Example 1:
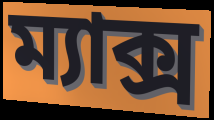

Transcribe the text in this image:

ম্যাক্স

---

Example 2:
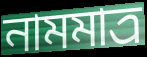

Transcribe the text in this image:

নামমাত্ৰ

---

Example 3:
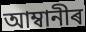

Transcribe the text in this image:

আম্বানীৰ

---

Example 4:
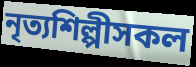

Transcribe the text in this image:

নৃত্যশিল্পীসকল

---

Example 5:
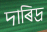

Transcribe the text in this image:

দাৰিদ্ৰ